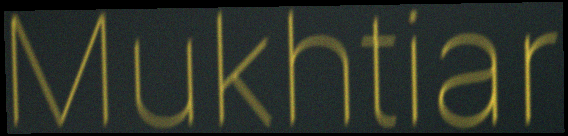
Mukhtiar